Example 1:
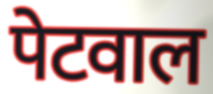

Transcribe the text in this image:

पेटवाल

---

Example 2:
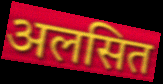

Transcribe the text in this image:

अलसित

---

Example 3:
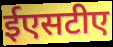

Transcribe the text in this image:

ईएसटीए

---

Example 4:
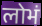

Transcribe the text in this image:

लोभं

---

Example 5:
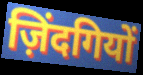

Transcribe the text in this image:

ज़िंदगियों